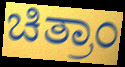
ಚಿತ್ರಾಂ